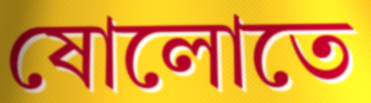
ষোলোতে